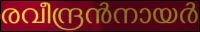
രവീന്ദ്രൻനായർ